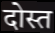
दोस्त